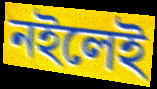
নইলেই